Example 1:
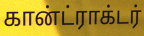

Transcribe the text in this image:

கான்ட்ராக்டர்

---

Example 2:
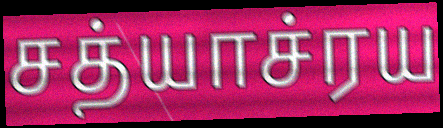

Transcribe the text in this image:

சத்யாச்ரய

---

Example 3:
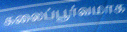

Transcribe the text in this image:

கலைப்பூர்வமாக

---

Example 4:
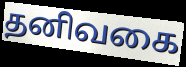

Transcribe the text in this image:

தனிவகை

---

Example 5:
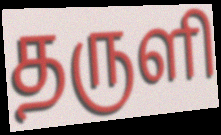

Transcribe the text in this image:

தருளி